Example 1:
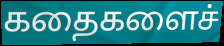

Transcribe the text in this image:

கதைகளைச்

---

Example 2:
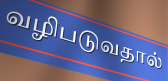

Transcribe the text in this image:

வழிபடுவதால்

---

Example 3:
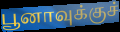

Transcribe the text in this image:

பூனாவுக்குச்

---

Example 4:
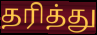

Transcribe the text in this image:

தரித்து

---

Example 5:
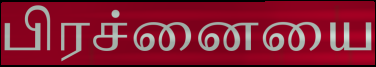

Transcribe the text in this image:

பிரச்னையை